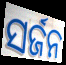
ସର୍ଜନ